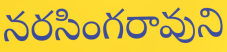
నరసింగరావుని